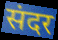
संदर